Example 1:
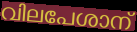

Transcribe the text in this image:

വിലപേശാന്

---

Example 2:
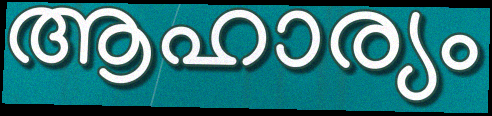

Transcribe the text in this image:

ആഹാര്യം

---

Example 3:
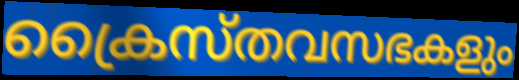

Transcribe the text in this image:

ക്രൈസ്തവസഭകളും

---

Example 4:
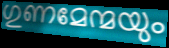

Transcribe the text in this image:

ഗുണമേന്മയും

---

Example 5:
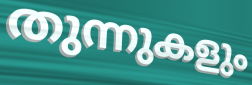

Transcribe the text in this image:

തുന്നുകളും